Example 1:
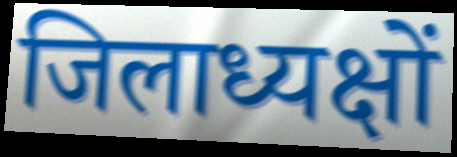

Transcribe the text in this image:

जिलाध्यक्षों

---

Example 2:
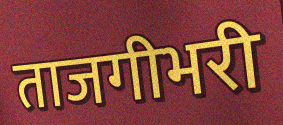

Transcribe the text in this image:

ताजगीभरी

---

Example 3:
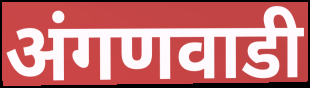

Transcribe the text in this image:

अंगणवाडी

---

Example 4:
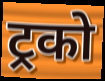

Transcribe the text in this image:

ट्रको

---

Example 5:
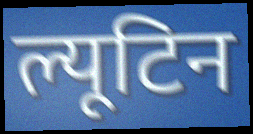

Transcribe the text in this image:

ल्यूटिन